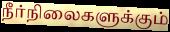
நீர்நிலைகளுக்கும்